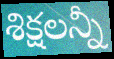
శిక్షలన్నీ